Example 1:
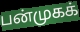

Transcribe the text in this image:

பன்முகக்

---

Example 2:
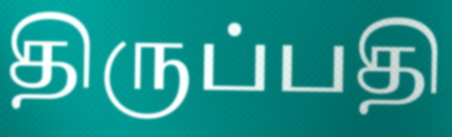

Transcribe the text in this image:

திருப்பதி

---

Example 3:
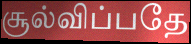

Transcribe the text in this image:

சூல்விப்பதே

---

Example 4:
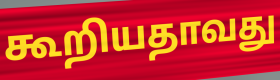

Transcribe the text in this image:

கூறியதாவது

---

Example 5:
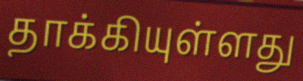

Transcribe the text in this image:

தாக்கியுள்ளது